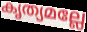
കൃത്യമല്ലേ